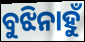
ବୁଝିନାହୁଁ